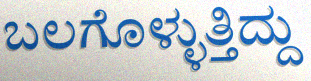
ಬಲಗೊಳ್ಳುತ್ತಿದ್ದು